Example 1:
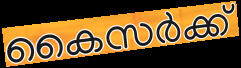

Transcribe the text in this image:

കൈസർക്ക്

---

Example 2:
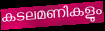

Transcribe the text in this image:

കടലമണികളും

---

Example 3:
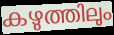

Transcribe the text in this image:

കഴുത്തിലും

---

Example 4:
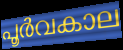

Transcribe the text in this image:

പൂർവകാല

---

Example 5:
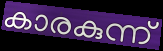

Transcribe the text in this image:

കാരകുന്ന്